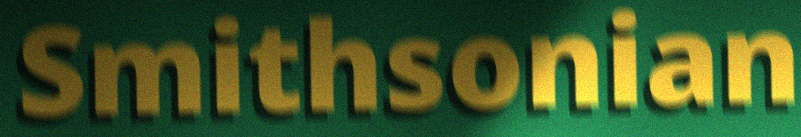
Smithsonian